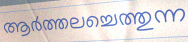
ആർത്തലച്ചെത്തുന്ന